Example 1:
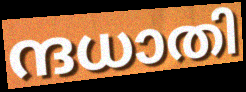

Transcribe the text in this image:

ന്ദധാതി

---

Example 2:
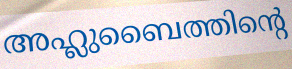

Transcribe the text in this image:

അഹ്ലുബൈത്തിന്റെ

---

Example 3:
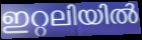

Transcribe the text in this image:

ഇറ്റലിയിൽ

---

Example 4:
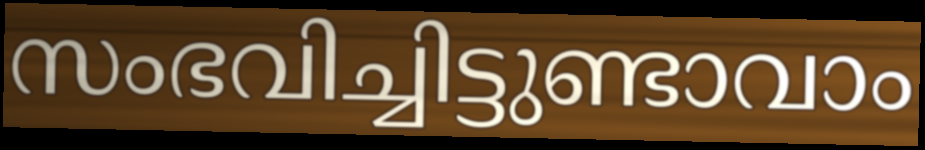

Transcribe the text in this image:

സംഭവിച്ചിട്ടുണ്ടാവാം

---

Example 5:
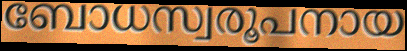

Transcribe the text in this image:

ബോധസ്വരൂപനായ